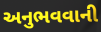
અનુભવવાની